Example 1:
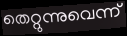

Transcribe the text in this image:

തെറ്റുന്നുവെന്ന്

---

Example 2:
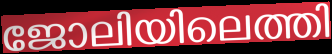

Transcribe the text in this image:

ജോലിയിലെത്തി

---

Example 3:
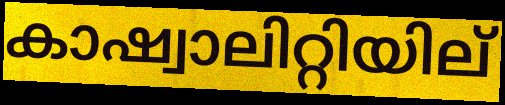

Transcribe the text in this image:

കാഷ്വാലിറ്റിയില്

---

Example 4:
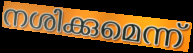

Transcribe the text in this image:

നശിക്കുമെന്ന്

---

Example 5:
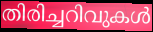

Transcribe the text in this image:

തിരിച്ചറിവുകൾ